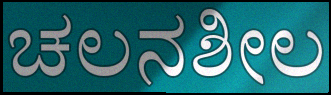
ಚಲನಶೀಲ